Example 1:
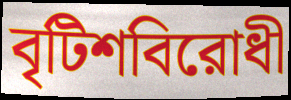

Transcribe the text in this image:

বৃটিশবিরোধী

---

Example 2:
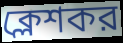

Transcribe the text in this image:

ক্লেশকর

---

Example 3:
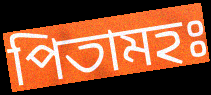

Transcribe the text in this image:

পিতামহঃ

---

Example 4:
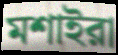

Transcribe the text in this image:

মশাইরা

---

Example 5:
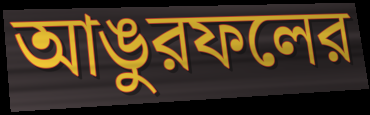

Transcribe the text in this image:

আঙুরফলের